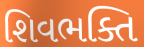
શિવભક્તિ